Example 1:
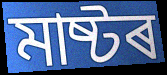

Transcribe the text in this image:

মাষ্টৰ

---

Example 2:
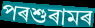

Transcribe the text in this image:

পৰশুৰামৰ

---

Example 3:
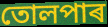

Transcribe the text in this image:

তোলপাৰ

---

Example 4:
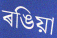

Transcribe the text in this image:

ৰঙিয়া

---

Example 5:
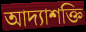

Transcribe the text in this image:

আদ্যাশক্তি